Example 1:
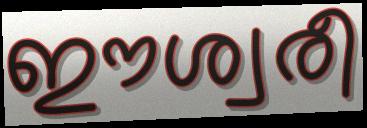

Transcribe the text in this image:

ഈശ്വരീ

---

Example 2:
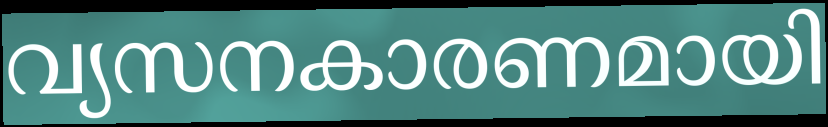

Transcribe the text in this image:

വ്യസനകാരണമായി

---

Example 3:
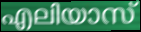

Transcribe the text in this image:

എലിയാസ്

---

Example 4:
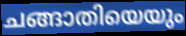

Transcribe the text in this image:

ചങ്ങാതിയെയും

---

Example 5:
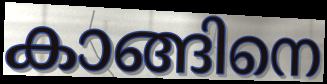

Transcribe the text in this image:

കാങ്ങിനെ